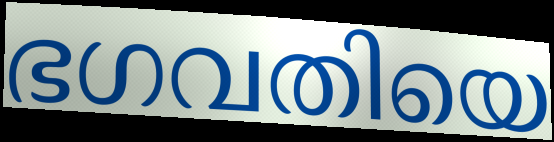
ഭഗവതിയെ